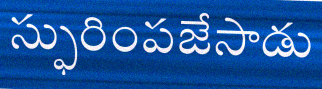
స్ఫురింపజేసాడు